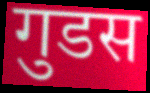
गुडस